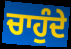
ਚਾਹੁੰਦੇ